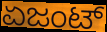
ಏಜಂಟ್